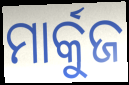
ମାର୍କୁଜ